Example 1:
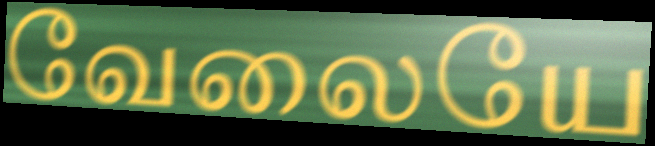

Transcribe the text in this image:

வேலையே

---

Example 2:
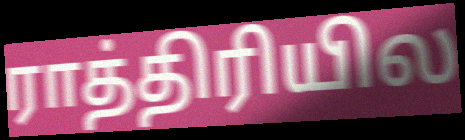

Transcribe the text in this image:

ராத்திரியில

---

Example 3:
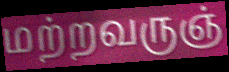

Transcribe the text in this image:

மற்றவருஞ்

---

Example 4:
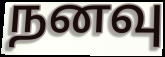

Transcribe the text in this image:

நனவு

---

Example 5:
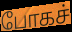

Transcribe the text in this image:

போகச்